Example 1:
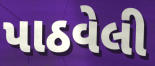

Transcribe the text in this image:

પાઠવેલી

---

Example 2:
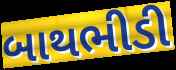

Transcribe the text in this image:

બાથભીડી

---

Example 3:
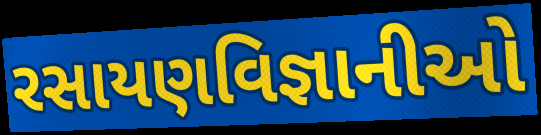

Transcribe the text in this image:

રસાયણવિજ્ઞાનીઓ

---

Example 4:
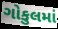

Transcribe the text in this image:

ગોકુલમાં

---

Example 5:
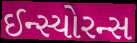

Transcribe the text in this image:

ઈન્સ્યોરન્સ